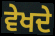
ਵੇਖਦੇ